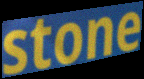
stone